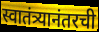
स्वातंत्र्यानंतरची